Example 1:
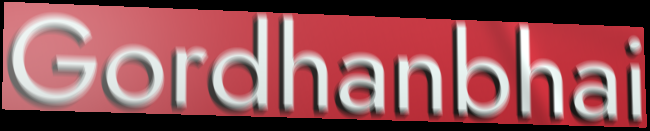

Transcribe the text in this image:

Gordhanbhai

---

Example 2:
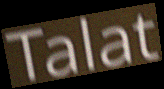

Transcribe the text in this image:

Talat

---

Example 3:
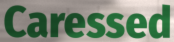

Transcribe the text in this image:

Caressed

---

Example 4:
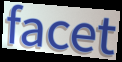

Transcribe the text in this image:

facet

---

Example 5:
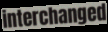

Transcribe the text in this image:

interchanged